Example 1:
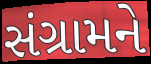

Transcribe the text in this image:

સંગ્રામને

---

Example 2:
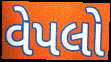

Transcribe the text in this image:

વેપલો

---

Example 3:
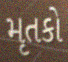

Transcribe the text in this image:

મૃતકો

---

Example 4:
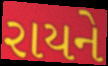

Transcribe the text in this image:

રાયને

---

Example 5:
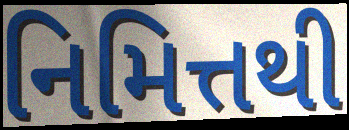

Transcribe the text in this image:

નિમિત્તથી